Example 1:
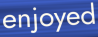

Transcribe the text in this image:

enjoyed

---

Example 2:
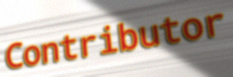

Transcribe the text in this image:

Contributor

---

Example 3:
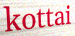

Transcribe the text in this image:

kottai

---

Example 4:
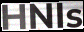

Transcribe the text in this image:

HNIs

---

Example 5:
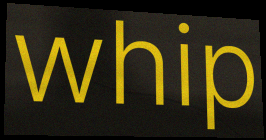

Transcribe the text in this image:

whip